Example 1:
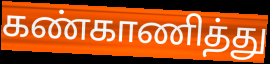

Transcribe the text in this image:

கண்காணித்து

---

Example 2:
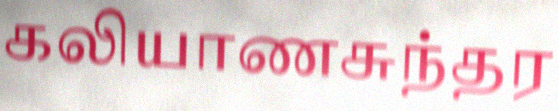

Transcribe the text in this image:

கலியாணசுந்தர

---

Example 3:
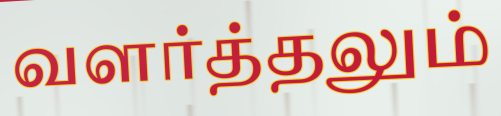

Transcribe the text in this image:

வளர்த்தலும்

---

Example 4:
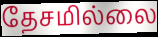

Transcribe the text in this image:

தேசமில்லை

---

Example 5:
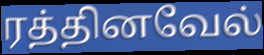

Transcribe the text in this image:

ரத்தினவேல்